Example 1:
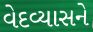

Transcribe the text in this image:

વેદવ્યાસને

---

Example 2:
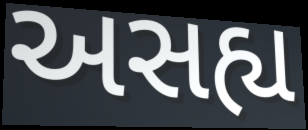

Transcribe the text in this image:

અસહ્ય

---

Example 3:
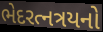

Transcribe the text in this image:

ભેદરત્નત્રયનો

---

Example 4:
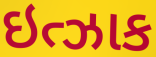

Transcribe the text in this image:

ઇત્ઝાક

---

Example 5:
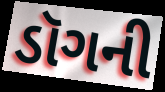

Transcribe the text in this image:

ડૉગની